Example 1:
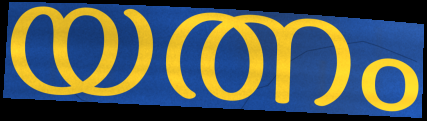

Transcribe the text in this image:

യത്നം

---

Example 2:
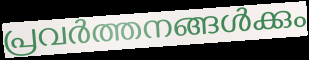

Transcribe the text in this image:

പ്രവർത്തനങ്ങൾക്കും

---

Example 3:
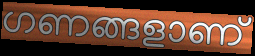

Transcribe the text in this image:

ഗണങ്ങളാണ്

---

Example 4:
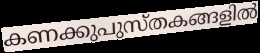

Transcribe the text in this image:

കണക്കുപുസ്തകങ്ങളിൽ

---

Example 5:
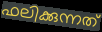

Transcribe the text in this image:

ഫലിക്കുന്നത്